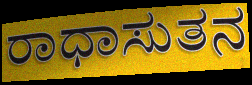
ರಾಧಾಸುತನ